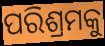
ପରିଶ୍ରମକୁ